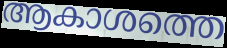
ആകാശത്തെ